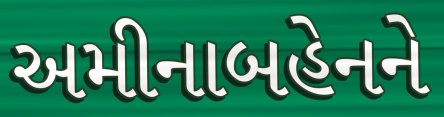
અમીનાબહેનને